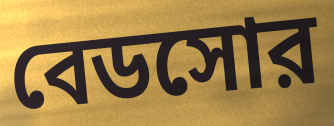
বেডসোর